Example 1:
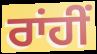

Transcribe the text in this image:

ਰਾਂਹੀਂ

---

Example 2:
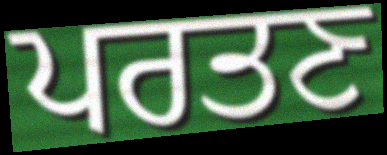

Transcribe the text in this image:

ਪਰਤਣ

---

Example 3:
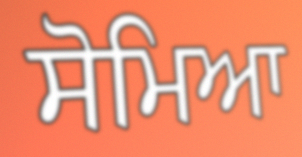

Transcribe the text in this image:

ਸੋਮਿਆ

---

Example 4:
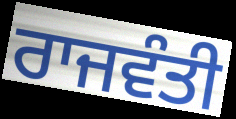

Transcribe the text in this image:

ਰਾਜਵੰਤੀ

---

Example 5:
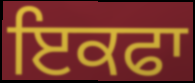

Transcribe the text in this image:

ਇਕਫਾ